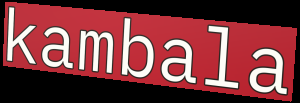
kambala